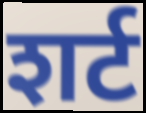
शर्ट